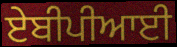
ਏਬੀਪੀਆਈ